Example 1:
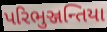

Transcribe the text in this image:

પરિભુઞ્જન્તિયા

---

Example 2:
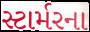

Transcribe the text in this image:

સ્ટાર્મરના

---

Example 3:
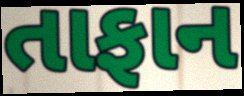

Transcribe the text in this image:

તાફાન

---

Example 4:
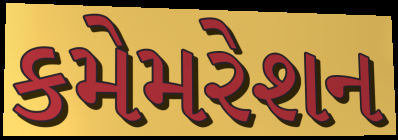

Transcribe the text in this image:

કમેમરેશન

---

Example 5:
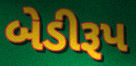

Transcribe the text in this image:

બેડીરૂપ